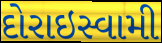
દોરાઇસ્વામી